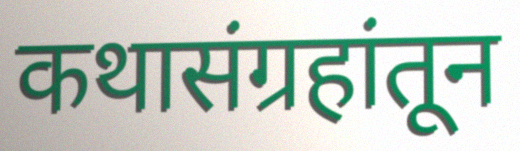
कथासंग्रहांतून